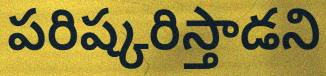
పరిష్కరిస్తాడని